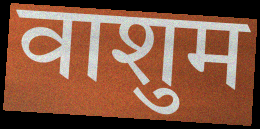
वाशुम